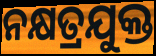
ନକ୍ଷତ୍ରଯୁକ୍ତ